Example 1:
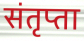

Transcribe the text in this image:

संतृप्ता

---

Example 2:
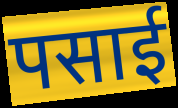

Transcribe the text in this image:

पसाई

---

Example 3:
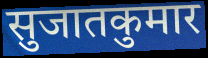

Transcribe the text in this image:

सुजातकुमार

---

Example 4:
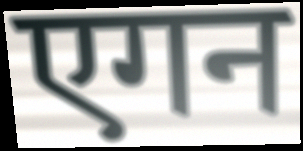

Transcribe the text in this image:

एगन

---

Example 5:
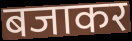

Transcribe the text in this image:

बजाकर